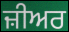
ਜ਼ੀਅਰ